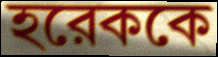
হরেককে